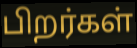
பிறர்கள்